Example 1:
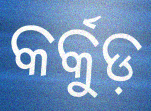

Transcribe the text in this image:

କର୍କୁଡ଼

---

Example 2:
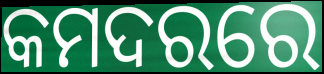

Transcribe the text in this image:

କମଦରରେ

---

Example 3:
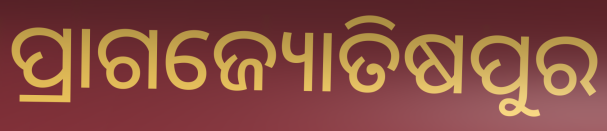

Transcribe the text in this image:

ପ୍ରାଗଜ୍ୟୋତିଷପୁର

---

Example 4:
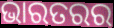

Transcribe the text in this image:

ଭାରତରର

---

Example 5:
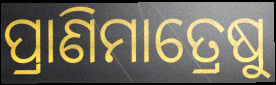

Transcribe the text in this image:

ପ୍ରାଣିମାତ୍ରେଷୁ